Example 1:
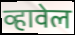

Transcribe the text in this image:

व्हावेल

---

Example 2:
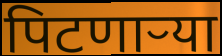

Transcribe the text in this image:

पिटणाऱ्या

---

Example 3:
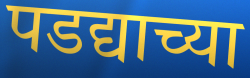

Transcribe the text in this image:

पडद्याच्या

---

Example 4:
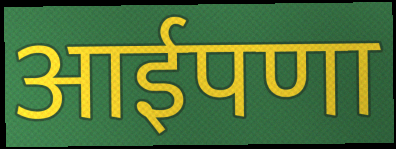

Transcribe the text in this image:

आईपणा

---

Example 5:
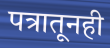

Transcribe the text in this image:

पत्रातूनही